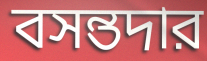
বসন্তদার